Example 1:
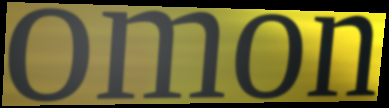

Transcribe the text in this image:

omon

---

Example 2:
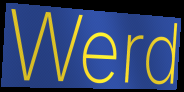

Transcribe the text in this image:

Werd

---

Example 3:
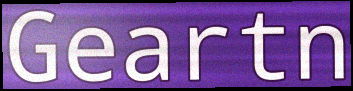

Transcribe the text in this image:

Geartn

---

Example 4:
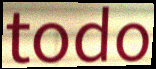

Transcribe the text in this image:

todo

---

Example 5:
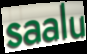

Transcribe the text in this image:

saalu